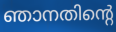
ഞാനതിന്റെ